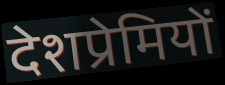
देशप्रेमियों